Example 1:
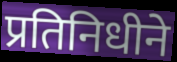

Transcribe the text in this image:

प्रतिनिधीने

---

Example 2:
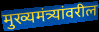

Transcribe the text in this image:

मुख्यमंत्र्यांवरील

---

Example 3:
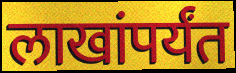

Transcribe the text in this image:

लाखांपर्यंत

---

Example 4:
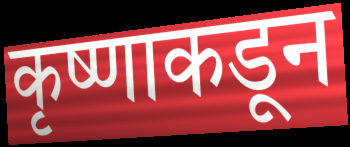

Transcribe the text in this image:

कृष्णाकडून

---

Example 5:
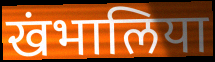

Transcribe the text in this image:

खंभालिया